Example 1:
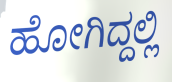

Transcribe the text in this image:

ಹೋಗಿದ್ದಲ್ಲಿ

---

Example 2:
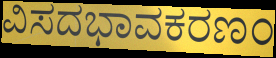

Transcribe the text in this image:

ವಿಸದಭಾವಕರಣಂ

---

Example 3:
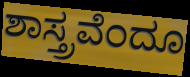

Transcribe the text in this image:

ಶಾಸ್ತ್ರವೆಂದೂ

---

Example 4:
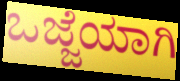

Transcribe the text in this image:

ಒಜ್ಜೆಯಾಗಿ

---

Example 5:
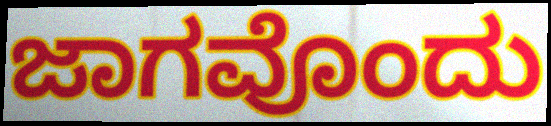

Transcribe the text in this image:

ಜಾಗವೊಂದು